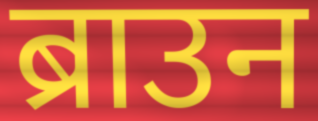
ब्राउन